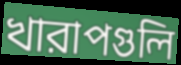
খারাপগুলি